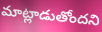
మాట్లాడుతోందని